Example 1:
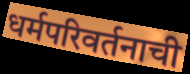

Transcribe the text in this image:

धर्मपरिवर्तनाची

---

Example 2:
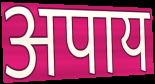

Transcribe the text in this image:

अपाय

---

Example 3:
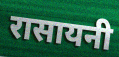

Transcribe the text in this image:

रासायनी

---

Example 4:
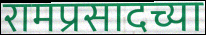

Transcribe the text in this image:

रामप्रसादच्या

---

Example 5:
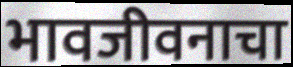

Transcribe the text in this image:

भावजीवनाचा